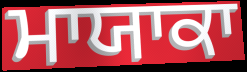
ਮਾਯਾਕਾ